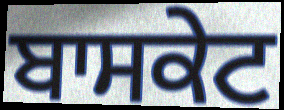
ਬਾਸਕੇਟ